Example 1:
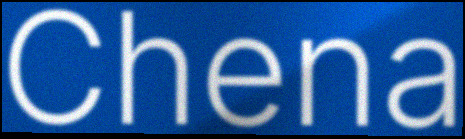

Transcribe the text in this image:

Chena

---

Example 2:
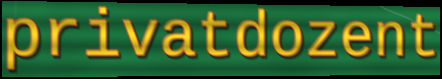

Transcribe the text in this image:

privatdozent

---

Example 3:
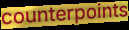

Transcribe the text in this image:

counterpoints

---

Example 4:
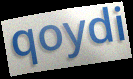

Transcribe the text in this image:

qoydi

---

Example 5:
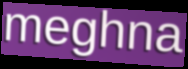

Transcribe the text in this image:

meghna